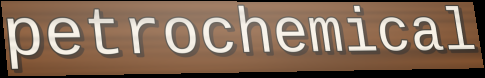
petrochemical